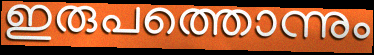
ഇരുപത്തൊന്നും